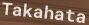
Takahata